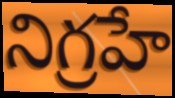
నిగ్రహే